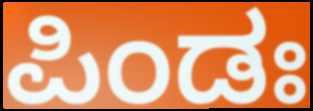
ಪಿಂಡಃ